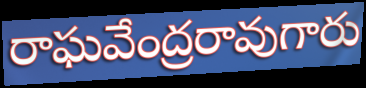
రాఘవేంద్రరావుగారు